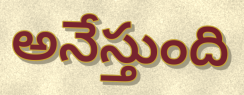
అనేస్తుంది